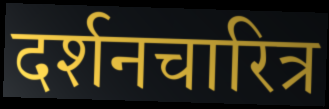
दर्शनचारित्र